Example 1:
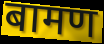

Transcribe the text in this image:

बामण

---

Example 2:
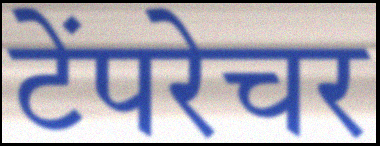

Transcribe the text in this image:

टेंपरेचर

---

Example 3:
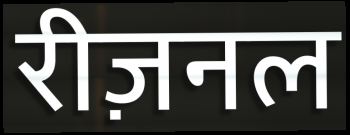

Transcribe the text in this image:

रीज़नल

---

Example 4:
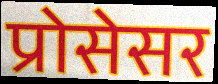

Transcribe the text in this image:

प्रोसेसर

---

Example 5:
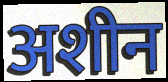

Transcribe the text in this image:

अशीन